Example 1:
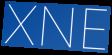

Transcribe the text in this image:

XNE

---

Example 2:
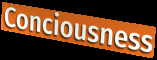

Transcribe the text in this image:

Conciousness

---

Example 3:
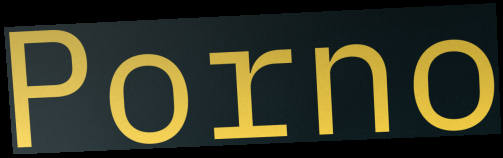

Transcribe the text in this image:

Porno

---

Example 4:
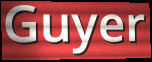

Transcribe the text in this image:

Guyer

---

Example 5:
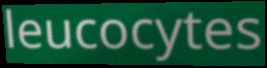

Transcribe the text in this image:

leucocytes